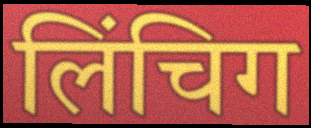
लिंचिग